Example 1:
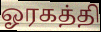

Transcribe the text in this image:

ஓரகத்தி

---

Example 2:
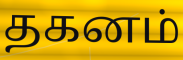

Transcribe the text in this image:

தகனம்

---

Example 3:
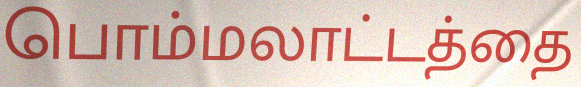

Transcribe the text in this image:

பொம்மலாட்டத்தை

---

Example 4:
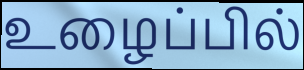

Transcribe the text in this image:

உழைப்பில்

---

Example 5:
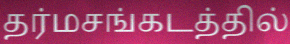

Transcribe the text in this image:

தர்மசங்கடத்தில்